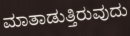
ಮಾತಾಡುತ್ತಿರುವುದು